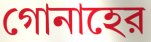
গোনাহের